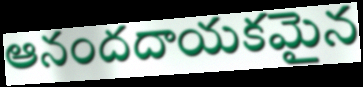
ఆనందదాయకమైన